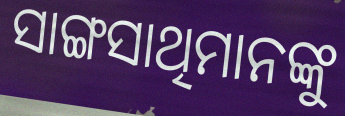
ସାଙ୍ଗସାଥିମାନଙ୍କୁ